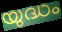
യുദ്ധം